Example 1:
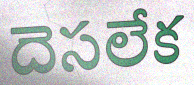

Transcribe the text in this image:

దెసలేక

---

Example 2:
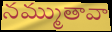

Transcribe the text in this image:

నమ్ముతావా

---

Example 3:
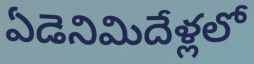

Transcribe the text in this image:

ఏడెనిమిదేళ్లలో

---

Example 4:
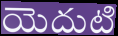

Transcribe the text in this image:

యెదుటి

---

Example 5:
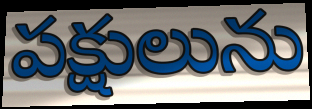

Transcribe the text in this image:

పక్షులును